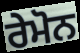
ਰੇਮੋਨ